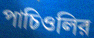
পাচিওলির